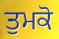
ਤੁਮਕੋ